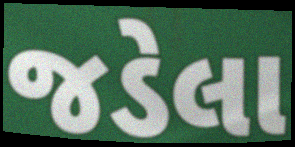
જડેલા